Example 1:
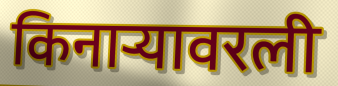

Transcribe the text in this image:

किनाऱ्यावरली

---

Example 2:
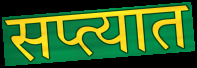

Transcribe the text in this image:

सप्त्यात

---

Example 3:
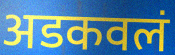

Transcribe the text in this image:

अडकवलं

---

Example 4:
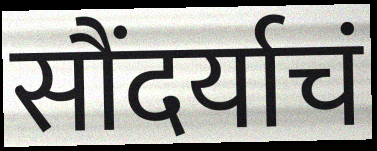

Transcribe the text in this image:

सौंदर्याचं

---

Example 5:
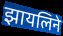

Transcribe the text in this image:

झायलिने